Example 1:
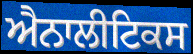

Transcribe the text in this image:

ਐਨਾਲੀਟਿਕਸ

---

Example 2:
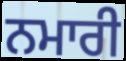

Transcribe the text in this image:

ਨਮਾਰੀ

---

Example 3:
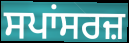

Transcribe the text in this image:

ਸਪਾਂਸਰਜ਼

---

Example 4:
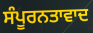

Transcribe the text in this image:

ਸੰਪੂਰਨਤਾਵਾਦ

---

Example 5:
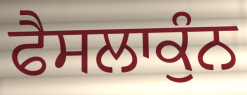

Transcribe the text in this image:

ਫੈਸਲਾਕੁੰਨ